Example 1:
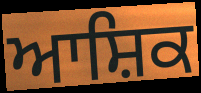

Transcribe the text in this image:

ਆਸ਼ਿਕ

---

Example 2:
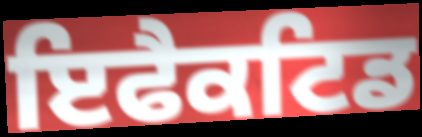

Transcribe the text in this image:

ਇਫੈਕਟਿਡ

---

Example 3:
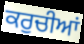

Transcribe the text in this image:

ਕਰੁਚੀਆਂ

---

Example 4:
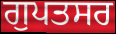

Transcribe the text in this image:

ਗੁਪਤਸਰ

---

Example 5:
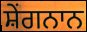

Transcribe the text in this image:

ਸ਼ੇਂਗਨਾਨ